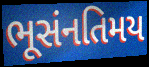
ભૂસંનતિમય